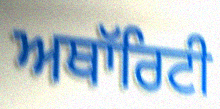
ਅਥਾੱਰਿਟੀ